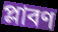
প্লাবণ